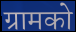
ग्रामको